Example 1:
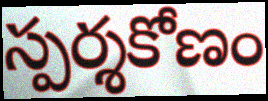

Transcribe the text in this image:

స్పర్శకోణం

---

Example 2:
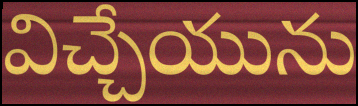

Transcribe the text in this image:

విచ్చేయును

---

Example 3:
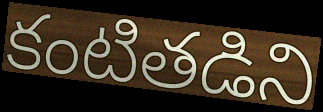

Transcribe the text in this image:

కంటితడిని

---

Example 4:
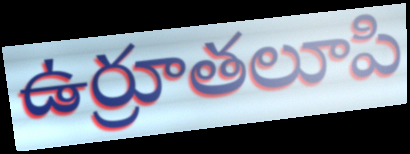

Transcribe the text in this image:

ఉర్రూతలూపి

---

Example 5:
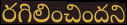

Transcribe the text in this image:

రగిలించిందని